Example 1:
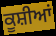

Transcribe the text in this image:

ਕੂਸ਼ੀਆਂ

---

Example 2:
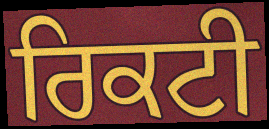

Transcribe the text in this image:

ਰਿਕਟੀ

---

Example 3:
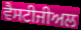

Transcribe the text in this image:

ਵੈਸਟੀਜੀਅਲ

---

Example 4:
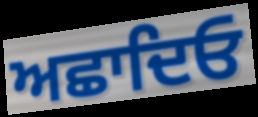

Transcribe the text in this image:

ਅਛਾਦਿਓ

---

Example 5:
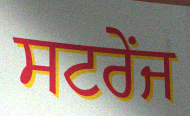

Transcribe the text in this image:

ਸਟਰੇਂਜ